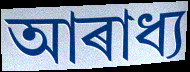
আৰাধ্য